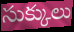
సుక్కులు